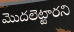
మొదలెట్టారని